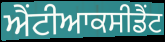
ਐਂਟੀਆਕਸੀਡੈਂਟ